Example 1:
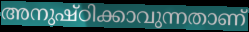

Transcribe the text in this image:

അനുഷ്ഠിക്കാവുന്നതാണ്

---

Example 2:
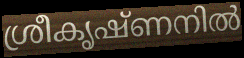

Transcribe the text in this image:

ശ്രീകൃഷ്ണനിൽ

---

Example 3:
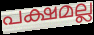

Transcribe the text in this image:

പക്ഷമല്ല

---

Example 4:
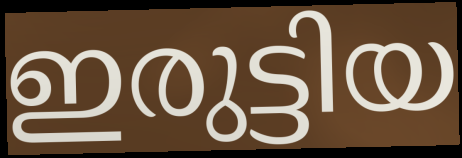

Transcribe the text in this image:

ഇരുട്ടിയ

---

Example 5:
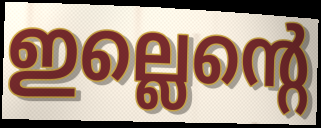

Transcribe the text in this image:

ഇല്ലെന്റെ